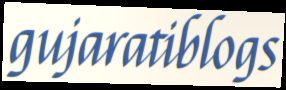
gujaratiblogs